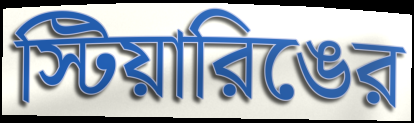
স্টিয়ারিঙের